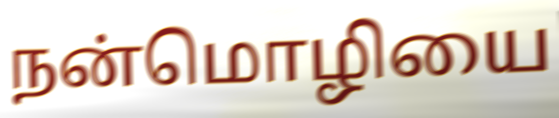
நன்மொழியை